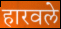
हारवले